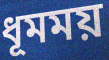
ধূমময়